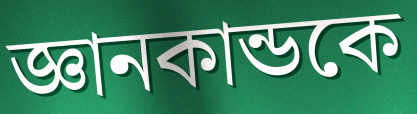
জ্ঞানকান্ডকে